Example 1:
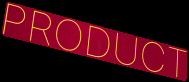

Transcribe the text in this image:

PRODUCT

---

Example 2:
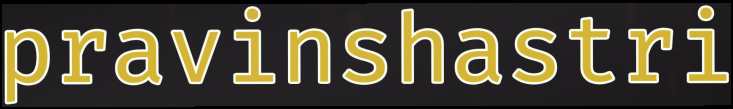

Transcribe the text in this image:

pravinshastri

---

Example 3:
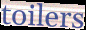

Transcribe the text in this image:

toilers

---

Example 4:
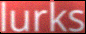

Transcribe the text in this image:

lurks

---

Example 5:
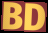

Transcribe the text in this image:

BD